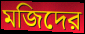
মজিদের